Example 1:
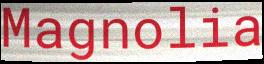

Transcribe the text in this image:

Magnolia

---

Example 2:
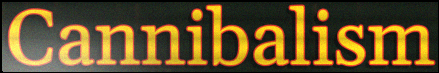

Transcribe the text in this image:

Cannibalism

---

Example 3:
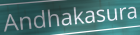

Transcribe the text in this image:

Andhakasura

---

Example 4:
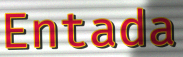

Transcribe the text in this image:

Entada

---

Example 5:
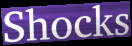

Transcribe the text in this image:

Shocks